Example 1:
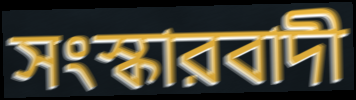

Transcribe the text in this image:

সংস্কারবাদী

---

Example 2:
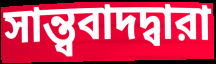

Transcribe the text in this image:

সান্ত্ববাদদ্বারা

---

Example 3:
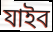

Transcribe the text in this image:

যাইব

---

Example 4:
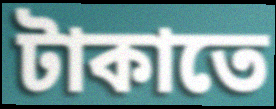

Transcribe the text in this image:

টাকাতে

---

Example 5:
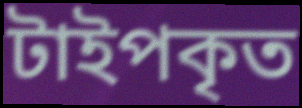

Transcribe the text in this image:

টাইপকৃত